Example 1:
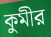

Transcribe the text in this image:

কুমীর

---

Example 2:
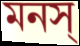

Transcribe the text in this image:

মনস্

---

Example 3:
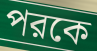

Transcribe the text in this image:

পরকে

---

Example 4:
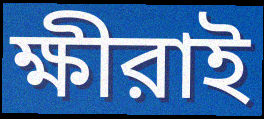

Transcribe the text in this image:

ক্ষীরাই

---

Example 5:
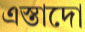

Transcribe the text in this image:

এস্তাদো